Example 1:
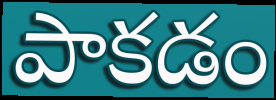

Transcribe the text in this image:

పాకడం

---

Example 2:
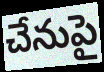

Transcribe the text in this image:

చేనుపై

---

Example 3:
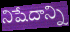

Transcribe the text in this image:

నిషేదాన్ని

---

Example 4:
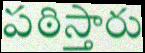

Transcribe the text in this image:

పఠిస్తారు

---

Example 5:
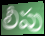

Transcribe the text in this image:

లీపు